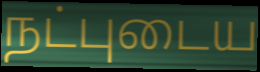
நட்புடைய